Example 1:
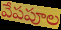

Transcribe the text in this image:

వేపపూల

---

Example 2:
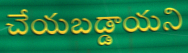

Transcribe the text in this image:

చేయబడ్డాయని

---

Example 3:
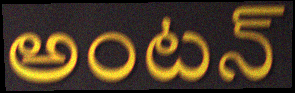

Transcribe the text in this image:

అంటన్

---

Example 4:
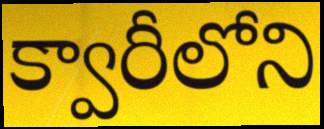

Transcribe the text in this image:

క్వారీలోని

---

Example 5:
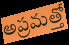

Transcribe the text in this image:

అప్రమత్తో